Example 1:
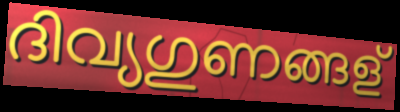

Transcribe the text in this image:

ദിവ്യഗുണങ്ങള്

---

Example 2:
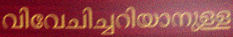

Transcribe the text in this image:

വിവേചിച്ചറിയാനുള്ള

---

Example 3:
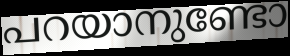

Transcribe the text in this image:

പറയാനുണ്ടോ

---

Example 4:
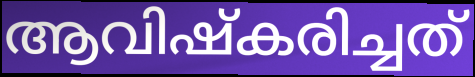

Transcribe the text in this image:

ആവിഷ്കരിച്ചത്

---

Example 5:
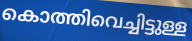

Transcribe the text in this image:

കൊത്തിവെച്ചിട്ടുള്ള